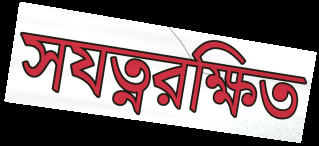
সযত্নরক্ষিত